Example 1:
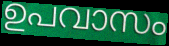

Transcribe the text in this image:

ഉപവാസം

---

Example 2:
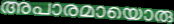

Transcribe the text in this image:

അപാരമായൊരു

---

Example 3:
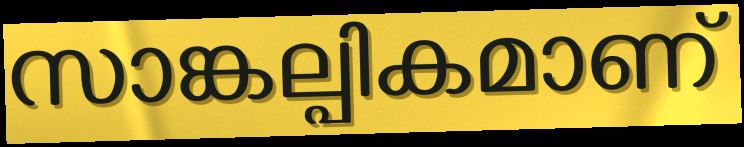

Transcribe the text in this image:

സാങ്കല്പികമാണ്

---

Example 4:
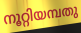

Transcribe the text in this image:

നൂറ്റിയമ്പതു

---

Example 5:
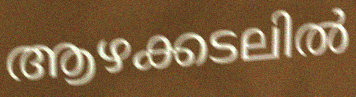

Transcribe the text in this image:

ആഴക്കടലിൽ